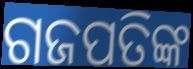
ଗଜପତିଙ୍କ